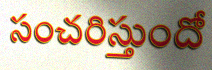
సంచరిస్తుందో